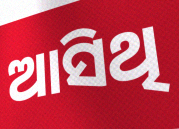
ଆସିଥି